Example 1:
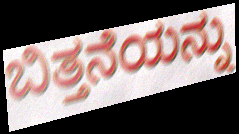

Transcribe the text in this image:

ಬಿತ್ತನೆಯನ್ನು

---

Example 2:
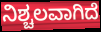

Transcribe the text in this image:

ನಿಶ್ಚಲವಾಗಿದೆ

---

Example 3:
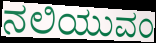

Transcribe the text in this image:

ನಲಿಯುವಂ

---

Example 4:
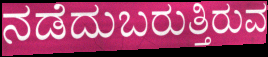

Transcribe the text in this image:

ನಡೆದುಬರುತ್ತಿರುವ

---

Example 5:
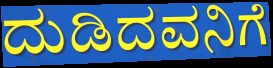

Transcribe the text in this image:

ದುಡಿದವನಿಗೆ